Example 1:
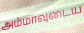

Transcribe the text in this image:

அம்மாவுடைய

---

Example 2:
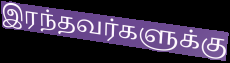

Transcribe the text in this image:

இரந்தவர்களுக்கு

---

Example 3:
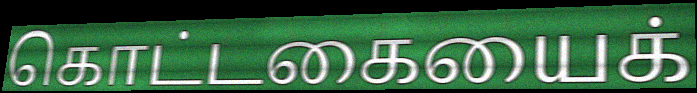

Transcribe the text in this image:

கொட்டகையைக்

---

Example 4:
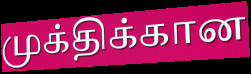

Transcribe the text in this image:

முக்திக்கான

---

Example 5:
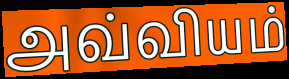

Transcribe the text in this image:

அவ்வியம்